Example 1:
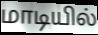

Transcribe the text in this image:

மாடியில்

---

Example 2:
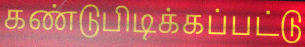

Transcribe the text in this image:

கண்டுபிடிக்கப்பட்டு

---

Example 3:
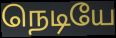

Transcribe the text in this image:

நெடியே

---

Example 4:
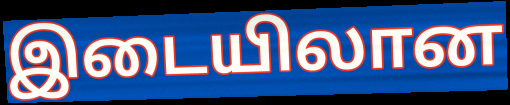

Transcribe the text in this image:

இடையிலான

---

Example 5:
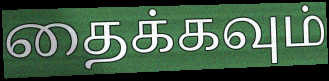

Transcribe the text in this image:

தைக்கவும்